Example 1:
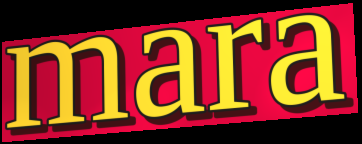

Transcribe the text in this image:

mara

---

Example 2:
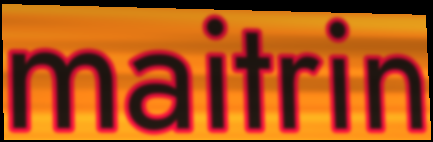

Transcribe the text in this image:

maitrin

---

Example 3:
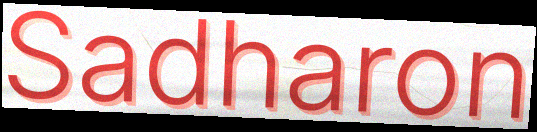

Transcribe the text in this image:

Sadharon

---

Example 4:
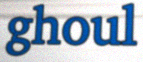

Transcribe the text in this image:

ghoul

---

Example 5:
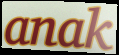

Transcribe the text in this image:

anak